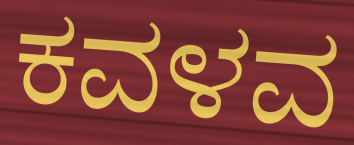
ಕವಳವ